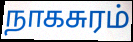
நாகசுரம்